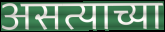
असत्याच्या